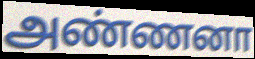
அண்ணனா